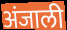
अंजाली